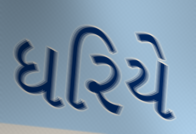
ધરિયે